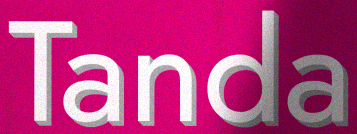
Tanda